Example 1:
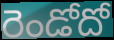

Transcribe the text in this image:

రెండోదో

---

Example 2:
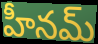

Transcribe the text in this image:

హీనమ్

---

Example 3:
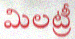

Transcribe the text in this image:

మిలట్రీ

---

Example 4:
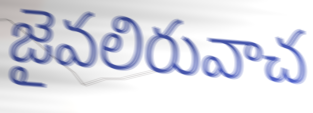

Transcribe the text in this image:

జైవలిరువాచ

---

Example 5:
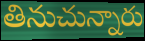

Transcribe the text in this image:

తినుచున్నారు